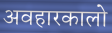
अवहारकालो